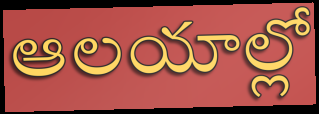
ఆలయాల్లో